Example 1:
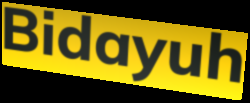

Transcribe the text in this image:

Bidayuh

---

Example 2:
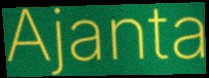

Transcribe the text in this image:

Ajanta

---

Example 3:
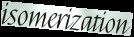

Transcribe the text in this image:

isomerization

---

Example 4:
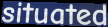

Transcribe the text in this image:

situated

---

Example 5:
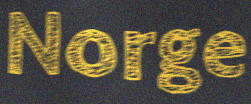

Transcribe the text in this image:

Norge